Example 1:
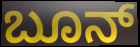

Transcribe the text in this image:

ಬೂನ್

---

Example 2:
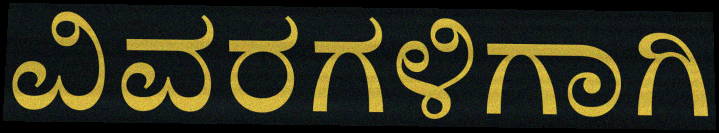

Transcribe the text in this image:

ವಿವರಗಳಿಗಾಗಿ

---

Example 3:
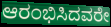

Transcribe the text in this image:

ಆರಂಭಿಸಿದವರೇ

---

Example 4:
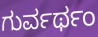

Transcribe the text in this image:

ಗುರ್ವರ್ಥಂ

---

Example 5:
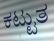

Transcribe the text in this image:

ಕಟ್ಟುತ